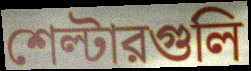
শেল্টারগুলি